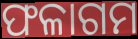
ଫଳାଗମ